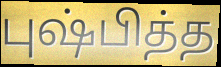
புஷ்பித்த